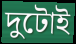
দুটোই